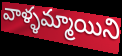
వాళ్ళమ్మాయిని